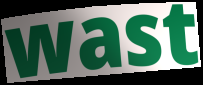
wast